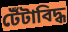
টেঁটাবিদ্ধ